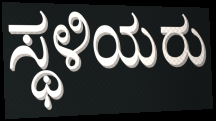
ಸ್ಥಳಿಯರು